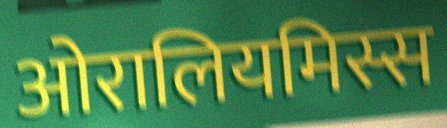
ओरालियमिस्स